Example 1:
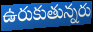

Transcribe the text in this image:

ఉరుకుతున్నరు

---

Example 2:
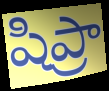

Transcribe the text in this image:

షిప్రా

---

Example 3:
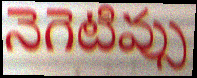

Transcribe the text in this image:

నెగెటివ్సు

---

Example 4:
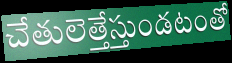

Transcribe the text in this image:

చేతులెత్తేస్తుండటంతో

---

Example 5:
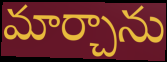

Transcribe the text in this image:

మార్చాను